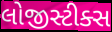
લોજીસ્ટીક્સ